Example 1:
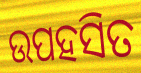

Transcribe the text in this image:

ଉପହସିତ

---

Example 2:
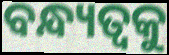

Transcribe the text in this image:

ବନ୍ଧ୍ୟତ୍ୱକୁ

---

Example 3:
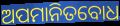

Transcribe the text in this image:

ଅପମାନିତବୋଧ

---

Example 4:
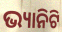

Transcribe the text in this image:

ଭ୍ୟାନିଟି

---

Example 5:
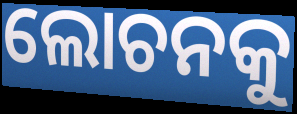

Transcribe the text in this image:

ଲୋଚନକୁ